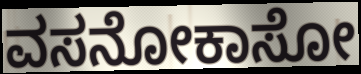
ವಸನೋಕಾಸೋ